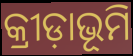
କ୍ରୀଡ଼ାଭୂମି